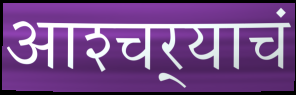
आश्चर्याचं